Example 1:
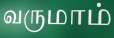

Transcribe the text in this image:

வருமாம்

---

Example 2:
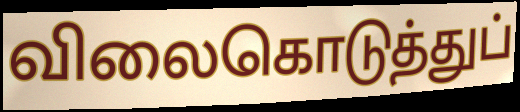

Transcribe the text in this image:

விலைகொடுத்துப்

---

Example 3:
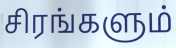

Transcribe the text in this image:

சிரங்களும்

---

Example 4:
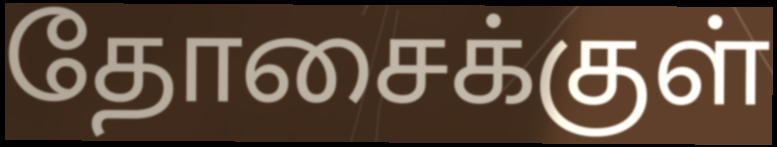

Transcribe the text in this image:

தோசைக்குள்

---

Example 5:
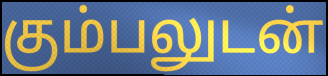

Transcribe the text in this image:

கும்பலுடன்